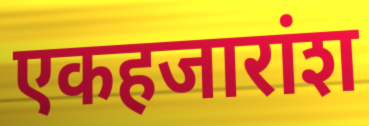
एकहजारांश